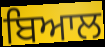
ਬਿਆਲ